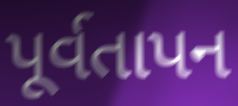
પૂર્વતાપન